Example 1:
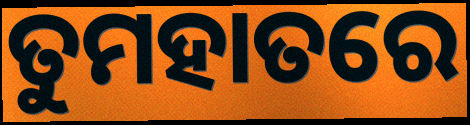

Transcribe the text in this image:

ତୁମହାତରେ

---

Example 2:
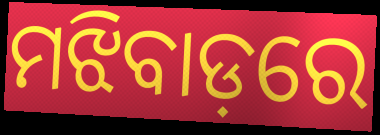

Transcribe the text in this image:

ମଝିବାଡ଼ରେ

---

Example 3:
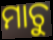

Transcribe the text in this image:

ମାଚୁ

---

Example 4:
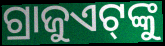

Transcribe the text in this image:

ଗ୍ରାଜୁଏଟ୍‌ଙ୍କୁ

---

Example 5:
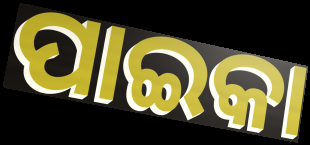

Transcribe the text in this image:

ପାଇକା